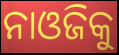
ନାଓଜିକୁ